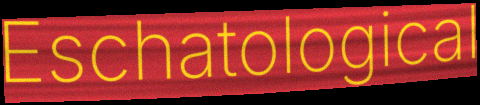
Eschatological